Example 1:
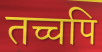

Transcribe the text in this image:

तच्चपि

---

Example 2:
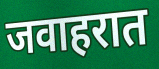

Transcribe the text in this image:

जवाहरात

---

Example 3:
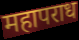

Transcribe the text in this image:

महापराध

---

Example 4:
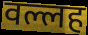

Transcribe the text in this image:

वल्लह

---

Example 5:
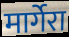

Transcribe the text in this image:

मार्गेरा